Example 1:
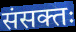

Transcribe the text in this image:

संसक्तः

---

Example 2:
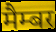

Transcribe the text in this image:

मैम्बर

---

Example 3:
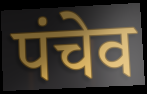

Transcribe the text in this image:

पंचेव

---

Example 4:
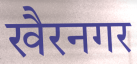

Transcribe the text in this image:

खैरनगर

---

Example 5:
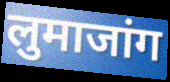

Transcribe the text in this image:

लुमाजांग